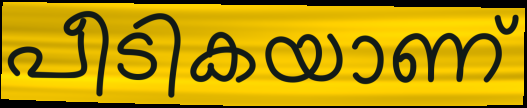
പീടികയാണ്